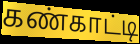
கண்காட்டி